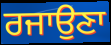
ਰਜਾਉਣਾ